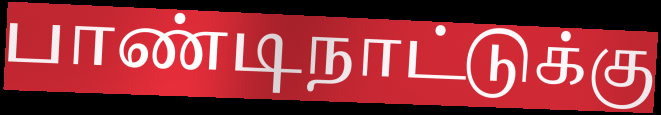
பாண்டிநாட்டுக்கு